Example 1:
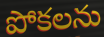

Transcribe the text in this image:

పోకలను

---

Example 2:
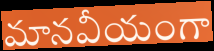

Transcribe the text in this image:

మానవీయంగా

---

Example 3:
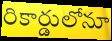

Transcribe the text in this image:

రికార్డులోనూ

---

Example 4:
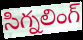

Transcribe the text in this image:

సిగ్నలింగ్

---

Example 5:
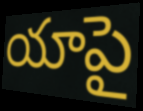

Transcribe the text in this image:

యాపై